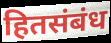
हितसंबंध